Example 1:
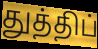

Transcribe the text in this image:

துத்திப்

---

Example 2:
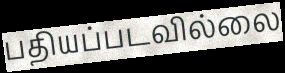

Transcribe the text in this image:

பதியப்படவில்லை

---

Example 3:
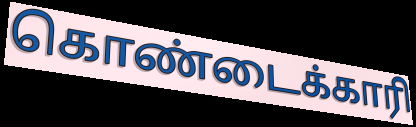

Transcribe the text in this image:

கொண்டைக்காரி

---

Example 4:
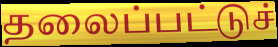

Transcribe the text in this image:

தலைப்பட்டுச்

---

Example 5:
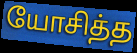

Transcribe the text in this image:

யோசித்த